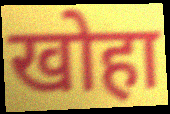
खोहा